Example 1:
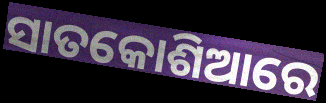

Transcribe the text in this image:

ସାତକୋଶିଆରେ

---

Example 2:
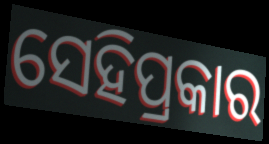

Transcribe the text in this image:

ସେହିପ୍ରକାର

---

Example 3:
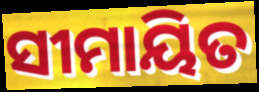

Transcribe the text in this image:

ସୀମାୟିତ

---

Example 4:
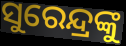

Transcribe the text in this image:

ସୁରେନ୍ଦ୍ରଙ୍କୁ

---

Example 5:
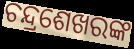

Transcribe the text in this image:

ଚନ୍ଦ୍ରଶେଖରଙ୍କ